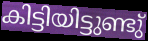
കിട്ടിയിട്ടുണ്ടു്